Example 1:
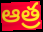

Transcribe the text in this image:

ఆత్ర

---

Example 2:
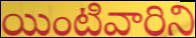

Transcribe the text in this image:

యింటివారిని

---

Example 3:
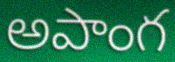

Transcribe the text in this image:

అపాంగ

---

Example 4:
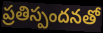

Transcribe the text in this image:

ప్రతిస్పందనతో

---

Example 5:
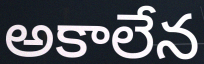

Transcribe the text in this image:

అకాలేన